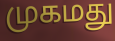
முகமது